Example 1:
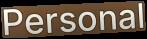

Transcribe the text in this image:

Personal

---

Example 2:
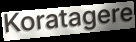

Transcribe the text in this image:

Koratagere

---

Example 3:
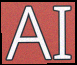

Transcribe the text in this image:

AI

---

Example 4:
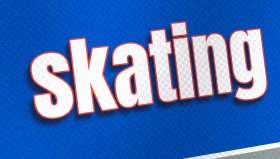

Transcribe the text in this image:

skating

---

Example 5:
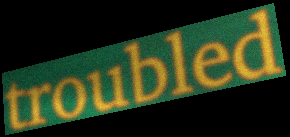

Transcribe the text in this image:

troubled